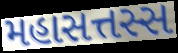
મહાસત્તસ્સ